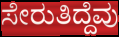
ಸೇರುತಿದ್ದೆವು